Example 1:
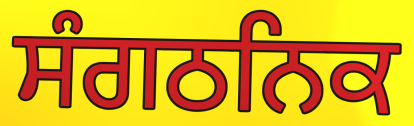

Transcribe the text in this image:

ਸੰਗਠਨਿਕ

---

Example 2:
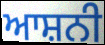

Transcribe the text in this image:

ਆਸ਼ਨੀ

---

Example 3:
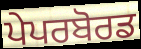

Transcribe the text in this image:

ਪੇਪਰਬੋਰਡ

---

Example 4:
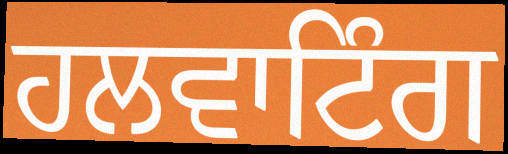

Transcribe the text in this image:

ਹਲਵਾਟਿੰਗ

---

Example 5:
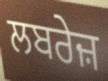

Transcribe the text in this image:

ਲਬਰੇਜ਼